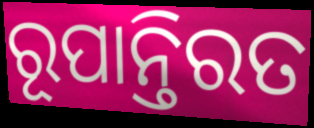
ରୂପାନ୍ତିରତ